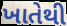
ખાતેથી